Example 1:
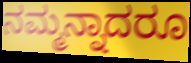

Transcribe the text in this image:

ನಮ್ಮನ್ನಾದರೂ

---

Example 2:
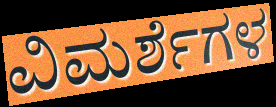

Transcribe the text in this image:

ವಿಮರ್ಶೆಗಳ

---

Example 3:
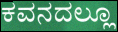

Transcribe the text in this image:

ಕವನದಲ್ಲೂ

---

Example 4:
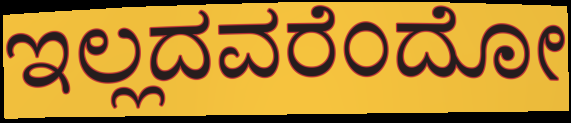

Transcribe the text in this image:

ಇಲ್ಲದವರೆಂದೋ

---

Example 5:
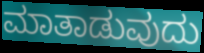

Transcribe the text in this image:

ಮಾತಾಡುವುದು